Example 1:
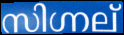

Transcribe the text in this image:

സിഗ്നല്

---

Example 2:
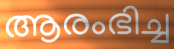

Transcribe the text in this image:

ആരംഭിച്ച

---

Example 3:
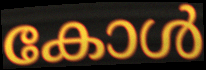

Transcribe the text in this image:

കോൾ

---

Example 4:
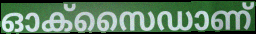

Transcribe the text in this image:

ഓക്സൈഡാണ്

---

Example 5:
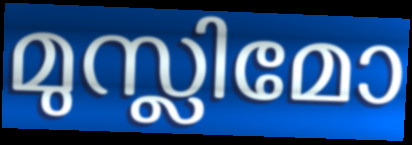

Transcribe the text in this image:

മുസ്ലിമോ